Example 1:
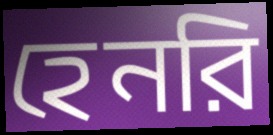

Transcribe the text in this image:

হেনরি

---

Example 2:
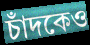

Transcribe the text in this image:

চাঁদকেও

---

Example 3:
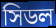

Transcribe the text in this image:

সিডল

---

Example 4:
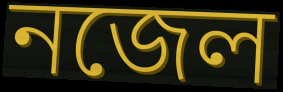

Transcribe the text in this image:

নজেল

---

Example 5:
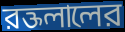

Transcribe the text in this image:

রক্তলালের